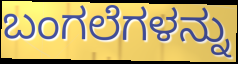
ಬಂಗಲೆಗಳನ್ನು